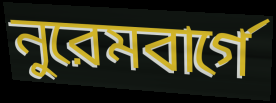
নুরেমবার্গে